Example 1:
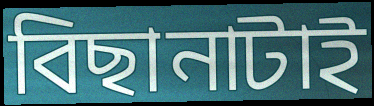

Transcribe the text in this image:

বিছানাটাই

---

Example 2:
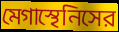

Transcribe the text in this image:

মেগাস্থেনিসের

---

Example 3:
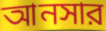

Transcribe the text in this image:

আনসার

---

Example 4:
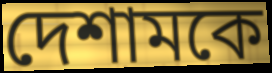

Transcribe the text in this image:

দেশামকে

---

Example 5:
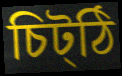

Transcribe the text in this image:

চিট্ঠি